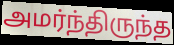
அமர்ந்திருந்த